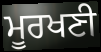
ਮੂਰਖਣੀ